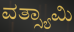
ವತ್ಸ್ಯಾಮಿ